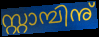
സ്റ്റാമ്പിനു്